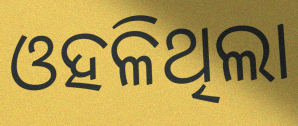
ଓହଳିଥିଲା